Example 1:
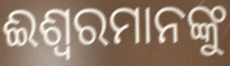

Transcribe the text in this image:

ଈଶ୍ୱରମାନଙ୍କୁ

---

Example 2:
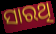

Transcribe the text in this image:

ସାରଥି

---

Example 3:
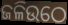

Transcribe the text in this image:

ଜଳିଉଠେ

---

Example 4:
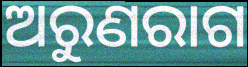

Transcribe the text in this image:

ଅରୁଣରାଗ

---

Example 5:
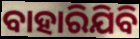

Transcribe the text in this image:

ବାହାରିଯିବି